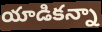
యాడికన్నా